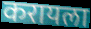
करायला